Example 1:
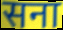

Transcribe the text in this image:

सना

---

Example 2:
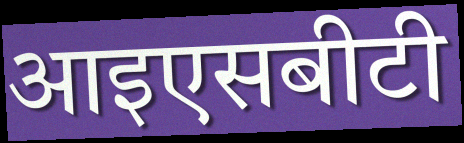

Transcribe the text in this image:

आइएसबीटी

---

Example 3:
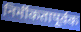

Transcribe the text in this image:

निर्भीकतापूर्वक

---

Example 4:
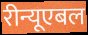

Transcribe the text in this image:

रीन्यूएबल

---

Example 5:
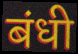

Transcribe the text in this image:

बंधी